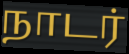
நாடர்